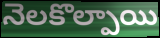
నెలకొల్పాయి